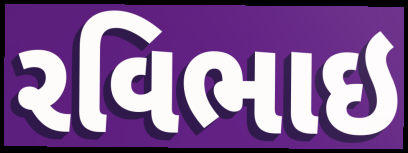
રવિભાઇ